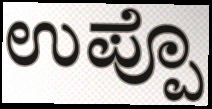
ಉಪ್ಪೊ